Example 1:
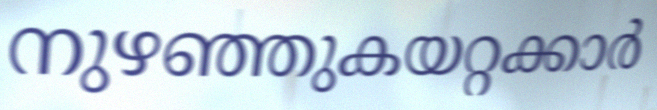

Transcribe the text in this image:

നുഴഞ്ഞുകയറ്റക്കാർ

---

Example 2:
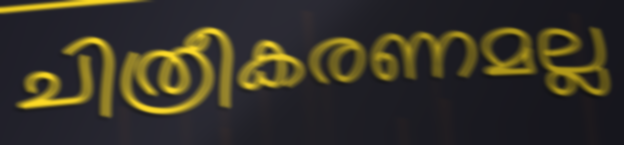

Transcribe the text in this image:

ചിത്രീകരണമല്ല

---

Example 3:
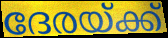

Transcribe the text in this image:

ദേരയ്ക്ക്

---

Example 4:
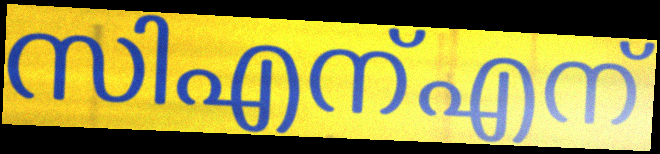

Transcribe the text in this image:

സിഎന്എന്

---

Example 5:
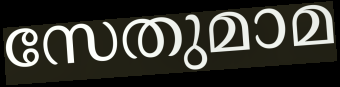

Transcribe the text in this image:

സേതുമാമ